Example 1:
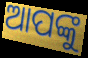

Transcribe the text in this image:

ଆପଙ୍କୁ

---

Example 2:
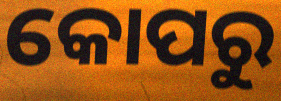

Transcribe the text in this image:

କୋପରୁ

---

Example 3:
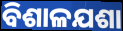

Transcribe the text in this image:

ବିଶାଳଯଶା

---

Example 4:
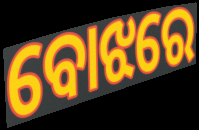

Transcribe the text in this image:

ବୋଝରେ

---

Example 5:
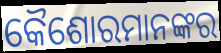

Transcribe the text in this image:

କୈଶୋରମାନଙ୍କର